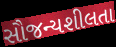
સૌજન્યશીલતા